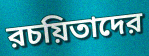
রচয়িতাদের